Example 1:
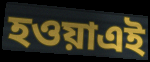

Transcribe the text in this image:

হওয়াএই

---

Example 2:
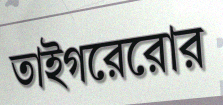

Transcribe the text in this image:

তাইগরেরোর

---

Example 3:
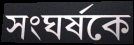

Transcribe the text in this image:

সংঘর্ষকে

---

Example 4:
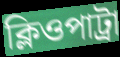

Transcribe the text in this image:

ক্লিওপাট্রা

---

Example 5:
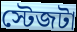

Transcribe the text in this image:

স্টেজটা